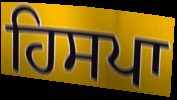
ਹਿਸਪਾ